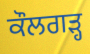
ਕੌਲਗੜ੍ਹ